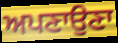
ਅਪਣਾਉਣਾ